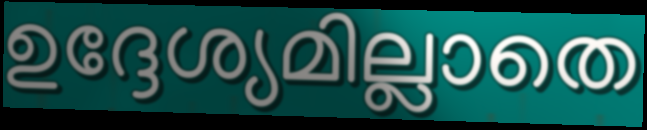
ഉദ്ദേശ്യമില്ലാതെ